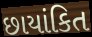
છાયાંકિત